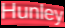
Hunley